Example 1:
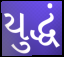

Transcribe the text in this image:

યુદ્ધં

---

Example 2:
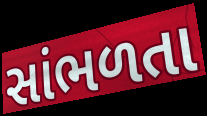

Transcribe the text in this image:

સાંભળતા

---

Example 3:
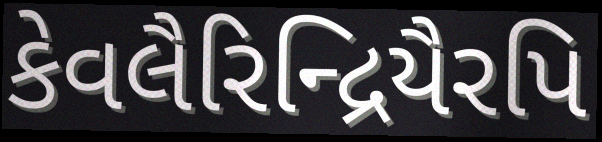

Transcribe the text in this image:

કેવલૈરિન્દ્રિયૈરપિ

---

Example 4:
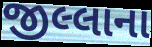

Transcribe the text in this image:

જીલ્લાના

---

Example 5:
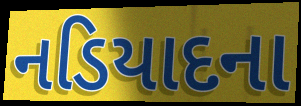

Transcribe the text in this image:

નડિયાદના